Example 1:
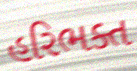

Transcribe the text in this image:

હરિભક્ત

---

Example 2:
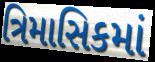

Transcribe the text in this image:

ત્રિમાસિકમાં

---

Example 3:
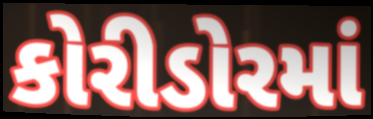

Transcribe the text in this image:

કોરીડોરમાં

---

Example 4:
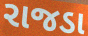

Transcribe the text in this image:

રાજડા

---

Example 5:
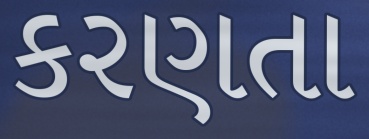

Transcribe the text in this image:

કરણતા